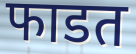
फाडत